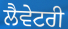
ਲੈਵੇਟਰੀ